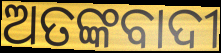
ଅତଙ୍କବାଦୀ